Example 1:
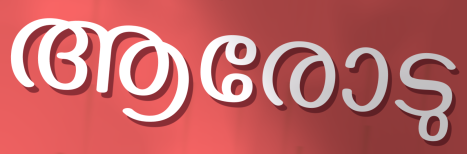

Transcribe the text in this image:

ആരോടു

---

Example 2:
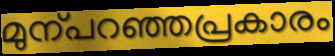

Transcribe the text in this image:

മുന്പറഞ്ഞപ്രകാരം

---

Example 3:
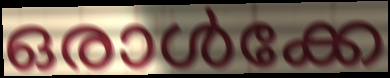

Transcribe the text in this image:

ഒരാൾക്കേ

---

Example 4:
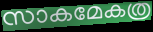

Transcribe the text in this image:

സാകമേകത്ര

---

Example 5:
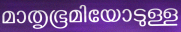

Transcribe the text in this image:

മാതൃഭൂമിയോടുള്ള